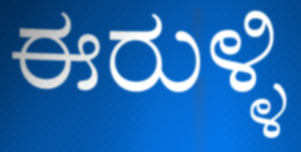
ಈರುಳ್ಳಿ